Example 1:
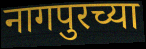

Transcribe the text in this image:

नागपुरच्या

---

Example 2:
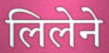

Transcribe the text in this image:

लिलेने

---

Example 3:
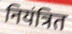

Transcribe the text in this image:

नियंत्रित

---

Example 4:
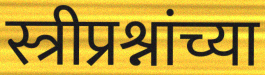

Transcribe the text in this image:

स्त्रीप्रश्नांच्या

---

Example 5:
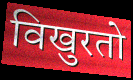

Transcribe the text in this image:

विखुरतो